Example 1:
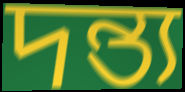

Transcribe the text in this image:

দন্ত্য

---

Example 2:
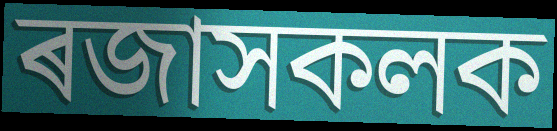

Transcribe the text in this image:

ৰজাসকলক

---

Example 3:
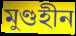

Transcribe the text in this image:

মুণ্ডহীন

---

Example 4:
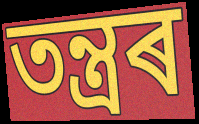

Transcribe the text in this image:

তন্ত্ৰৰ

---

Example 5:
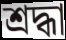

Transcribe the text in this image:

শ্ৰদ্ধা